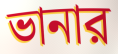
ভানার